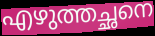
എഴുത്തച്ഛനെ